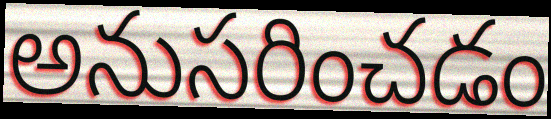
అనుసరించడం